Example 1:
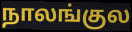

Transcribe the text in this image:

நாலங்குல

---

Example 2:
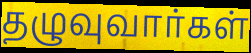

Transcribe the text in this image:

தழுவுவார்கள்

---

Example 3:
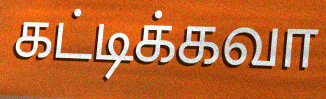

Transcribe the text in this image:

கட்டிக்கவா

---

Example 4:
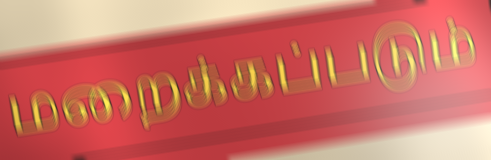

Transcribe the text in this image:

மறைக்கப்படும்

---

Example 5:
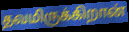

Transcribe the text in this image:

தவமிருக்கிறான்